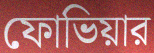
ফোভিয়ার